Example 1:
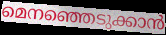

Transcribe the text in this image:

മെനഞ്ഞെടുക്കാൻ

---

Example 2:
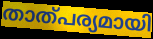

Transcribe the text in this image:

താത്പര്യമായി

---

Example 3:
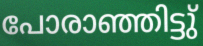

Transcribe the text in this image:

പോരാഞ്ഞിട്ടു്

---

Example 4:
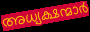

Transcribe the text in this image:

അധ്യക്ഷന്മാർ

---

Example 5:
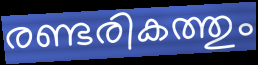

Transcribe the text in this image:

രണ്ടരികത്തും